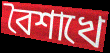
বৈশাখে